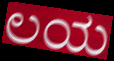
ಲಯ